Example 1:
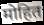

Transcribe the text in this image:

मोहित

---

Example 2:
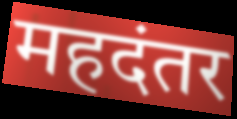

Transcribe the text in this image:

महदंतर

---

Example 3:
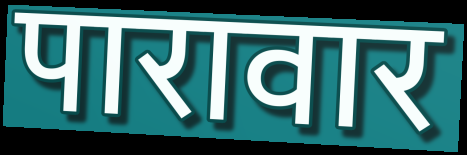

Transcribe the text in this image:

पारावार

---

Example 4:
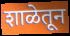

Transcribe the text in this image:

शाळेतून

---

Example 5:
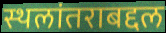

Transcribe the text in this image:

स्थलांतराबद्दल